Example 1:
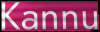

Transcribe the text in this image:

Kannu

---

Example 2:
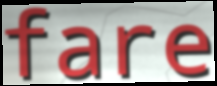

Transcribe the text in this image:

fare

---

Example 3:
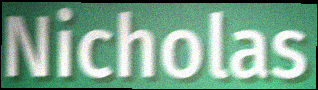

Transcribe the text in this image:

Nicholas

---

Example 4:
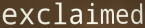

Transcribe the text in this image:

exclaimed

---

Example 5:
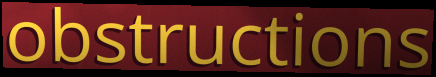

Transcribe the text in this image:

obstructions